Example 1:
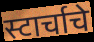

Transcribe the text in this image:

स्टार्चाचे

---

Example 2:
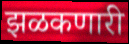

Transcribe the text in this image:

झळकणारी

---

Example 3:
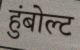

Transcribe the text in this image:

हुंबोल्ट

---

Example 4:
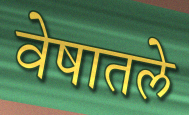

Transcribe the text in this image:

वेषातले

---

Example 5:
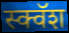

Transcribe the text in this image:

स्क्वॅश